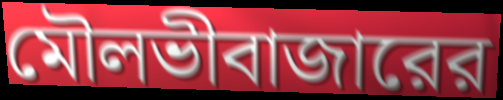
মৌলভীবাজারের